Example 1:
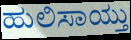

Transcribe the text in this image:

ಹುಲಿಸಾಯ್ತು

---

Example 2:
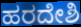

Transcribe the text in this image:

ಹರದೇಶಿ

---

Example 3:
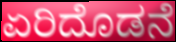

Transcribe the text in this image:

ಏರಿದೊಡನೆ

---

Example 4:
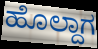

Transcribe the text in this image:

ಹೊಲ್ದಾಗ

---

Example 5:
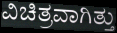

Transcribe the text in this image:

ವಿಚಿತ್ರವಾಗಿತ್ತು